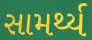
સામર્થ્ય